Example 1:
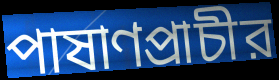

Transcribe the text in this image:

পাষাণপ্রাচীর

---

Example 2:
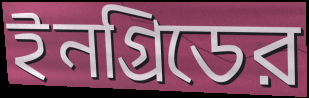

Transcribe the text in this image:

ইনগ্রিডের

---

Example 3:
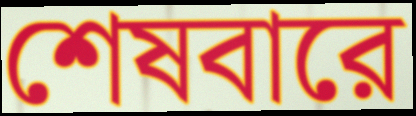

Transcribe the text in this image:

শেষবারে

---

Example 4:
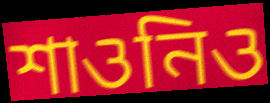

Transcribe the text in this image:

শাওনিও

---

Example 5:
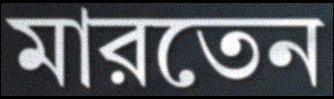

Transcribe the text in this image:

মারতেন